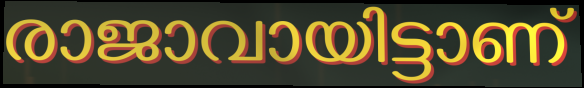
രാജാവായിട്ടാണ്